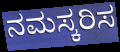
ನಮಸ್ಕರಿಸ